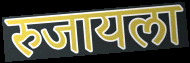
रुजायला